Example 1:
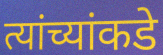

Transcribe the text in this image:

त्यांच्यांकडे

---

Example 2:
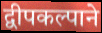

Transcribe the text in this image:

द्वीपकल्पाने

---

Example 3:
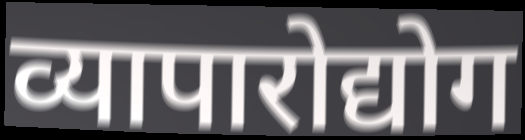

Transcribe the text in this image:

व्यापारोद्योग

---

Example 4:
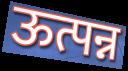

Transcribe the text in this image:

ऊत्पन्न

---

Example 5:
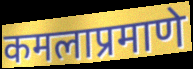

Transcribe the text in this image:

कमलाप्रमाणे